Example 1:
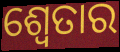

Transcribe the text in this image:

ଶ୍ୱେତାର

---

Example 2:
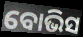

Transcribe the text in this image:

ବୋଭିସ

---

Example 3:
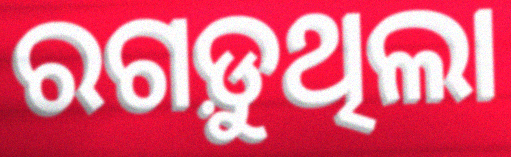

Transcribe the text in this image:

ରଗଡ଼ୁଥିଲା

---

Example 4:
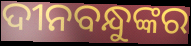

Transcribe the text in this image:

ଦୀନବନ୍ଧୁଙ୍କର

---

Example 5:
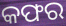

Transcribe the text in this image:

କଫର